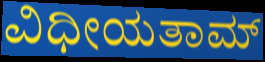
ವಿಧೀಯತಾಮ್